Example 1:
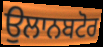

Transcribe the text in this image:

ਉਲਾਨਬਟੋਰ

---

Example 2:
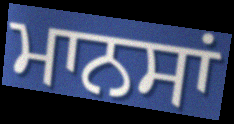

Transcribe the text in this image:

ਮਾਨਸਾਂ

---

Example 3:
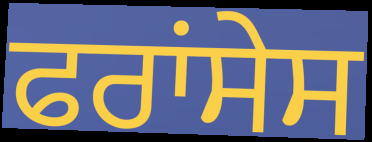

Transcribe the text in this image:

ਫਰਾਂਸੇਸ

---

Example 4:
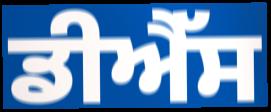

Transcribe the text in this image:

ਡੀਐੱਸ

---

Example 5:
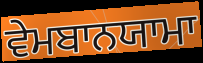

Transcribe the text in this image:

ਵੇਮਬਾਨਯਾਮਾ